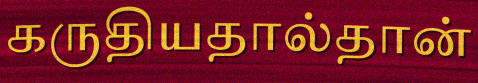
கருதியதால்தான்